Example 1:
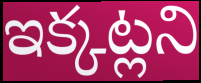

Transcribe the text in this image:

ఇక్కట్లని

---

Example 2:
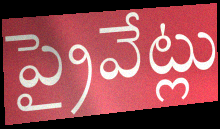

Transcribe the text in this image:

ప్రైవేట్లు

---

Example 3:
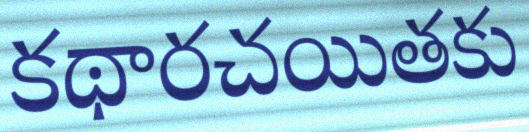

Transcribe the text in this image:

కథారచయితకు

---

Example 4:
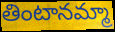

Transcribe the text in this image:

తింటానమ్మా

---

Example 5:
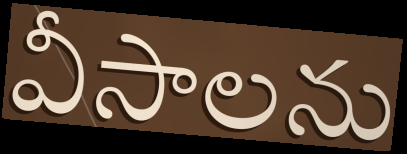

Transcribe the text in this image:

వీసాలను